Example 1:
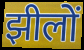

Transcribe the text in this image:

झीलों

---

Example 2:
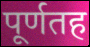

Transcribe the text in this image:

पूर्णतह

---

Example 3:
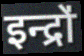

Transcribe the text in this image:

इन्द्रो॑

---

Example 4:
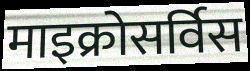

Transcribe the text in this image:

माइक्रोसर्विस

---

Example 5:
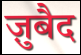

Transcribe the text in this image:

ज़ुबैद